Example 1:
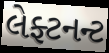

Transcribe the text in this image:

લેફ્ટનન્ટ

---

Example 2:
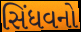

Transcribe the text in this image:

સિંધવનો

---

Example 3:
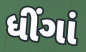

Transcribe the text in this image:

ધીંગાં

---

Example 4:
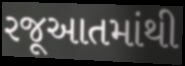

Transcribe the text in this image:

રજૂઆતમાંથી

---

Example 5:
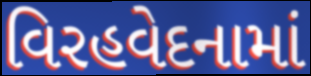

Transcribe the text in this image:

વિરહવેદનામાં